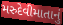
મરુદેવીમાતાનું